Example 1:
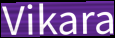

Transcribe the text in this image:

Vikara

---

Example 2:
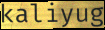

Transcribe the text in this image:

kaliyug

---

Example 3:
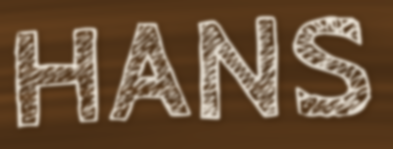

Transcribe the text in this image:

HANS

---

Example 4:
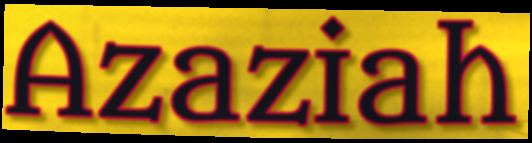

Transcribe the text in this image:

Azaziah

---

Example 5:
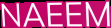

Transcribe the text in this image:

NAEEM